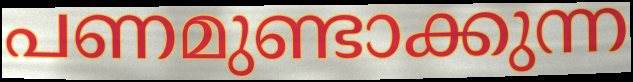
പണമുണ്ടാക്കുന്ന